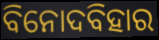
ବିନୋଦବିହାର